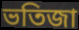
ভতিজা